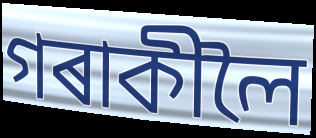
গৰাকীলৈ